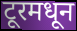
टूरमधून